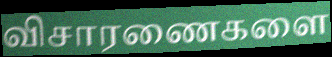
விசாரணைகளை